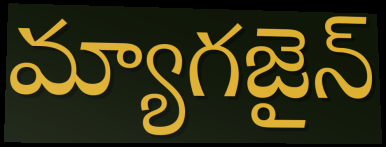
మ్యాగజైన్